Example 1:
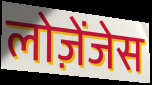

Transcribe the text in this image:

लोज़ेंजेस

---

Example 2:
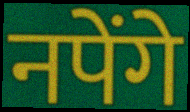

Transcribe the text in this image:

नपेंगे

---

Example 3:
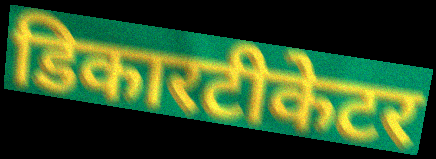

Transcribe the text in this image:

डिकारटीकेटर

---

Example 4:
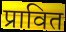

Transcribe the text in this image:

प्रावित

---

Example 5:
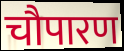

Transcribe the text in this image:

चौपारण